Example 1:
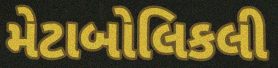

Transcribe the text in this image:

મેટાબોલિકલી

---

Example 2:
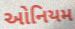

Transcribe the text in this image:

ઓનિયમ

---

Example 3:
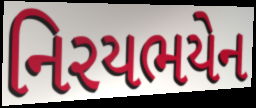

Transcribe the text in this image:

નિરયભયેન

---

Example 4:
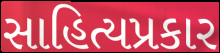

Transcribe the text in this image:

સાહિત્યપ્રકાર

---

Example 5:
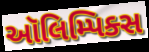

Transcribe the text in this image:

ઑલિમ્પિક્સ